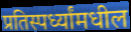
प्रतिस्पर्ध्यांमधील